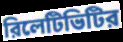
রিলেটিভিটির